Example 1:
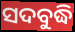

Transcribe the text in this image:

ସଦବୁଦ୍ଧି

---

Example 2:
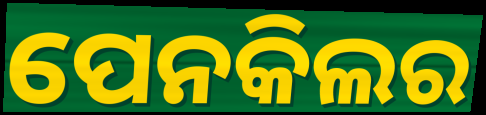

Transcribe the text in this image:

ପେନକିଲର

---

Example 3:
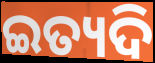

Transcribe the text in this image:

ଇତ୍ୟଦି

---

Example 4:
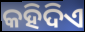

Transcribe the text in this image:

କହିଦିଏ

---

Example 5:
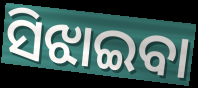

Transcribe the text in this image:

ସିଝାଇବା